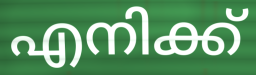
എനിക്ക്